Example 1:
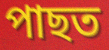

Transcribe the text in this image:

পাছত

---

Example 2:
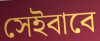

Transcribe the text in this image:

সেইবাবে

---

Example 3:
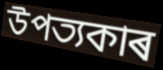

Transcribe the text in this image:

উপত্যকাৰ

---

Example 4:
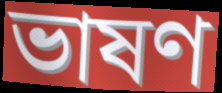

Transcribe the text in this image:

ভাষণ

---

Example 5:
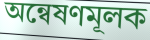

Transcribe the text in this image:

অন্বেষণমূলক